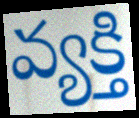
వ్యక్తి